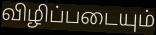
விழிப்படையும்